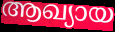
ആഖ്യായ